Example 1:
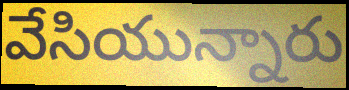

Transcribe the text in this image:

వేసియున్నారు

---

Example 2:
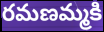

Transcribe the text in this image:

రమణమ్మకి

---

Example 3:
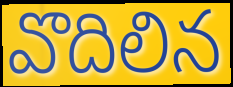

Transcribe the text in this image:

వొదిలిన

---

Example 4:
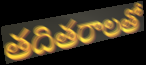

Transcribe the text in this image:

తదితరాలతో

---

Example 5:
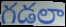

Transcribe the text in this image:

గడలా